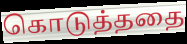
கொடுத்ததை